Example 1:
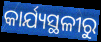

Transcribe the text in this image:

କାର୍ଯ୍ୟସ୍ଥଳୀରୁ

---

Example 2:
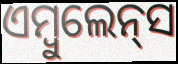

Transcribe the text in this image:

ଏମ୍ବୁଲେନ୍‌ସ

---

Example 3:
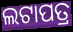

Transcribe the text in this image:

ଲଟାପତ୍ର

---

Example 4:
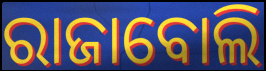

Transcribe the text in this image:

ରାଜାବୋଲି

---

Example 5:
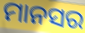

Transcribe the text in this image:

ମାନସର